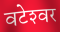
वटेश्वर